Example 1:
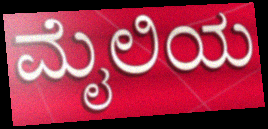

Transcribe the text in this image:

ಮೈಲಿಯ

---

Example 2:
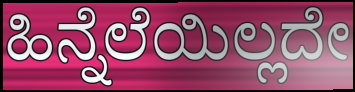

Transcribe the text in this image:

ಹಿನ್ನೆಲೆಯಿಲ್ಲದೇ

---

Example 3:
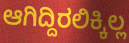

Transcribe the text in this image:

ಆಗಿದ್ದಿರಲಿಕ್ಕಿಲ್ಲ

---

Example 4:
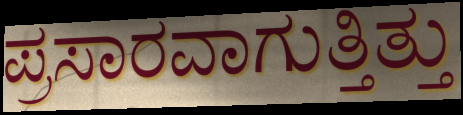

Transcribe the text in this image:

ಪ್ರಸಾರವಾಗುತ್ತಿತ್ತು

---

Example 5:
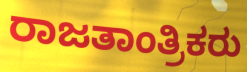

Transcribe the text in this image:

ರಾಜತಾಂತ್ರಿಕರು